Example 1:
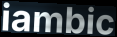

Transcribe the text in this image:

iambic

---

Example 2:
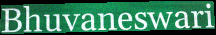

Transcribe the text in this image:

Bhuvaneswari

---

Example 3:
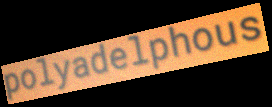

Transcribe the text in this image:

polyadelphous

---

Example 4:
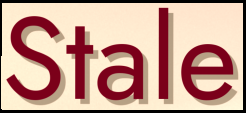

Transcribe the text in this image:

Stale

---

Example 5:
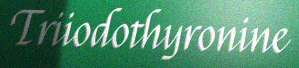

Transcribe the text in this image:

Triiodothyronine